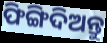
ଫିଙ୍ଗିଦିଅନ୍ତୁ